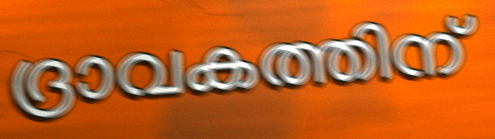
ദ്രാവകത്തിന്